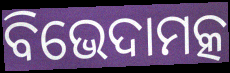
ବିଭେଦାମତ୍କ